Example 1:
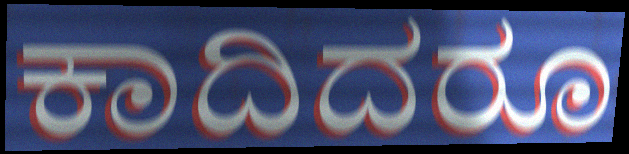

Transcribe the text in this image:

ಕಾದಿದರೂ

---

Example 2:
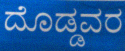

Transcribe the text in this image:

ದೊಡ್ಡವರ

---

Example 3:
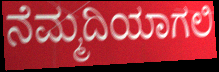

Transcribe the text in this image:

ನೆಮ್ಮದಿಯಾಗಲಿ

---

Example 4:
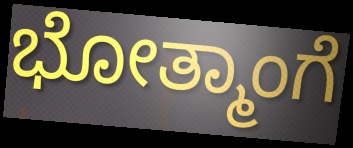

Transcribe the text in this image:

ಭೋತ್ಮಾಂಗೆ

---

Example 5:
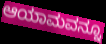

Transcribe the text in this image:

ಆಯಾಮವನ್ನೂ